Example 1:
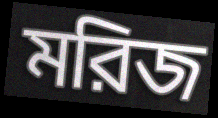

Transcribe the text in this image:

মরিজ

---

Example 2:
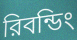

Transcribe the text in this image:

রিবন্ডিং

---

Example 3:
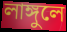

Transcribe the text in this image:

লাঙ্গুলে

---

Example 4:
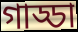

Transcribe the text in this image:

গাড্ডা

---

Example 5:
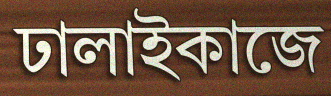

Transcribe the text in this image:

ঢালাইকাজে